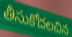
తీసుకోదలచిన